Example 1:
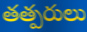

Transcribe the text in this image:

తత్పరులు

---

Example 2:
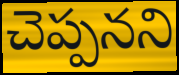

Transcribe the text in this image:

చెప్పనని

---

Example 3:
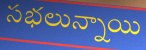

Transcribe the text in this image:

సభలున్నాయి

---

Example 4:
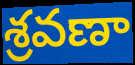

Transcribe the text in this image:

శ్రవణా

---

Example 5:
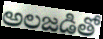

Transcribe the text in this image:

అలజడితో